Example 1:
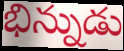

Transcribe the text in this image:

భిన్నుడు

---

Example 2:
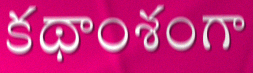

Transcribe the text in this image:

కథాంశంగా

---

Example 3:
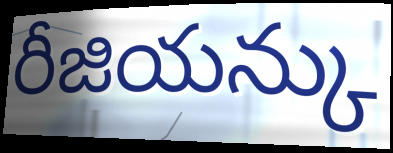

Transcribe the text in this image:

రీజియన్కు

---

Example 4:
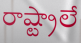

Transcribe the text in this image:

రాష్ట్రాలే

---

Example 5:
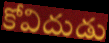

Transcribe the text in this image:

కోవిదుడు